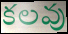
కలవు